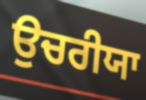
ਉਚਰੀਯਾ